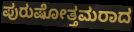
ಪುರುಷೋತ್ತಮರಾದ